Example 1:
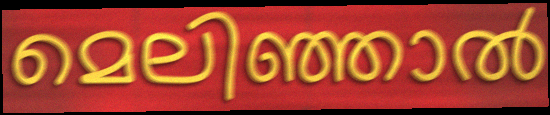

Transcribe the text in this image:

മെലിഞ്ഞാൽ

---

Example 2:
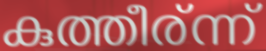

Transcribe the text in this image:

കുത്തീര്ന്ന്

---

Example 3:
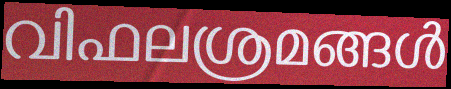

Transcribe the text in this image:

വിഫലശ്രമങ്ങൾ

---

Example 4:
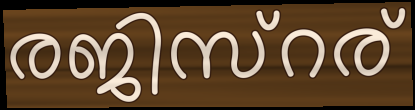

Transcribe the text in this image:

രജിസ്റര്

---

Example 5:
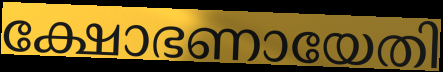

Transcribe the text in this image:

ക്ഷോഭണായേതി